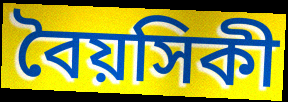
বৈয়সিকী